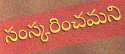
సంస్కరించమని